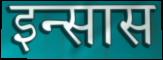
इन्सास